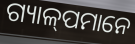
ଗ୍ୟାଳ୍‍ପମାନେ